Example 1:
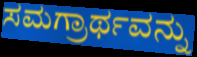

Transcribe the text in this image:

ಸಮಗ್ರಾರ್ಥವನ್ನು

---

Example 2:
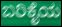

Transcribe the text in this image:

ಬರಿಕೈಯ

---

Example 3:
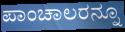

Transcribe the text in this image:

ಪಾಂಚಾಲರನ್ನೂ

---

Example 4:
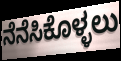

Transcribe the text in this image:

ನೆನೆಸಿಕೊಳ್ಳಲು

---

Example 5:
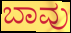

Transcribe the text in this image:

ಬಾವು